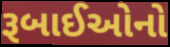
રૂબાઈઓનો